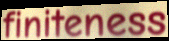
finiteness